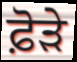
ਫ਼ੋੜੇ